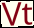
Vt